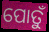
ପୋତୁଁ